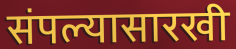
संपल्यासारखी